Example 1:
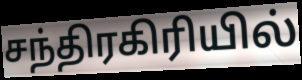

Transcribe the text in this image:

சந்திரகிரியில்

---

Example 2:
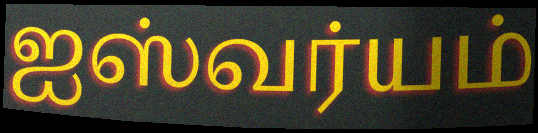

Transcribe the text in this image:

ஐஸ்வர்யம்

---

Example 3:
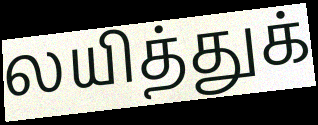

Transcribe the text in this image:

லயித்துக்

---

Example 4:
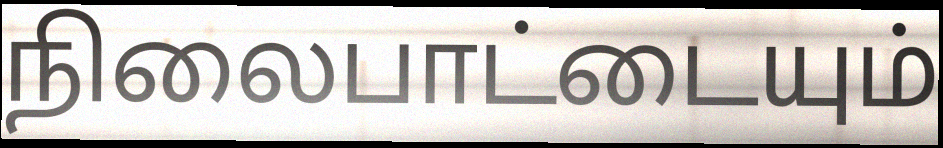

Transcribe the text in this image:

நிலைபாட்டையும்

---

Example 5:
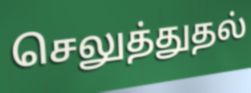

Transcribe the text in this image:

செலுத்துதல்